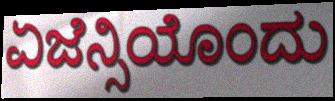
ಏಜೆನ್ಸಿಯೊಂದು